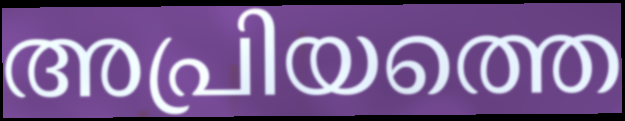
അപ്രിയത്തെ